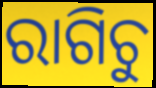
ରାଗିଚୁ